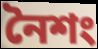
নৈশং